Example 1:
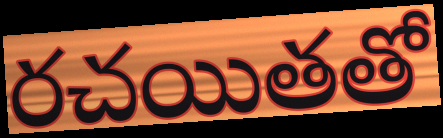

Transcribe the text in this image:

రచయితతో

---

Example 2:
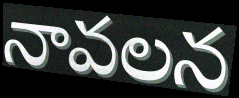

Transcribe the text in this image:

నావలన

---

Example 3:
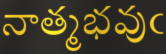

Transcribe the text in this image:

నాత్మభవుఁ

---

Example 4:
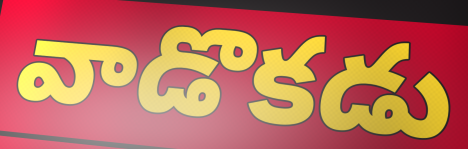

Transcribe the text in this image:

వాడొకడు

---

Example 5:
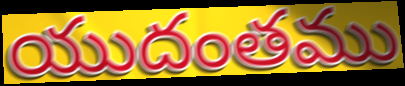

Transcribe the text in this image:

యుదంతము